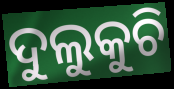
ଦୁଲୁକୁଚି